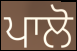
ਪਾਲੋ